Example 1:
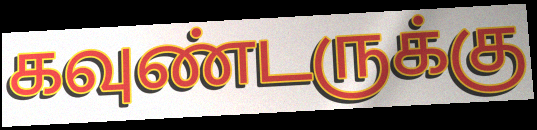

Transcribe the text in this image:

கவுண்டருக்கு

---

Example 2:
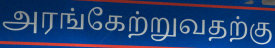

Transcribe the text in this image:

அரங்கேற்றுவதற்கு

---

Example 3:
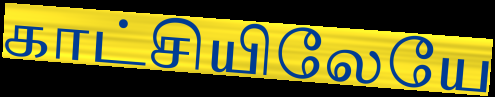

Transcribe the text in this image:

காட்சியிலேயே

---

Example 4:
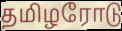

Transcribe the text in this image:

தமிழரோடு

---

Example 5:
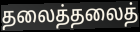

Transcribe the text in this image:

தலைத்தலைத்